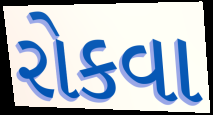
રોકવા